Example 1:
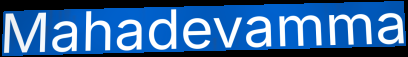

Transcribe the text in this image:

Mahadevamma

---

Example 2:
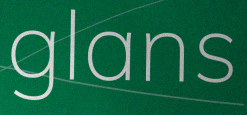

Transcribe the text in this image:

glans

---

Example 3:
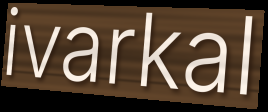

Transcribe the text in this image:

ivarkal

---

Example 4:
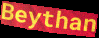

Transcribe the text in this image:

Beythan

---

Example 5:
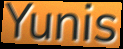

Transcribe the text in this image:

Yunis